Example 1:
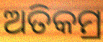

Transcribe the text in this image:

ଅତିକମ୍ର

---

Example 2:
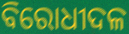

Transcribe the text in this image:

ବିରୋଧୀଦଳ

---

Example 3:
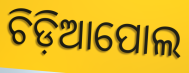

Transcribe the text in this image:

ଚିଡ଼ିଆପୋଲ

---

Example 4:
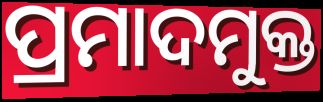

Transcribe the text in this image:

ପ୍ରମାଦମୁକ୍ତ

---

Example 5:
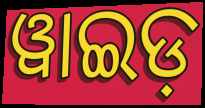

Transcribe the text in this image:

ୱାଇଡ଼